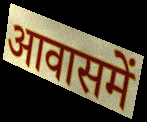
आवासमें